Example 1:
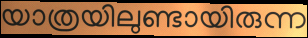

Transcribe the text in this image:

യാത്രയിലുണ്ടായിരുന്ന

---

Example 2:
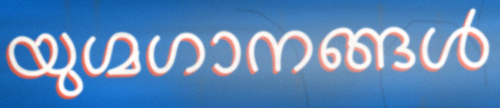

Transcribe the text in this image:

യുഗ്മഗാനങ്ങൾ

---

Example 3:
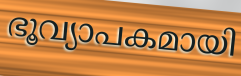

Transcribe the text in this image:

ഭൂവ്യാപകമായി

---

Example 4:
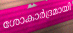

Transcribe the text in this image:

ശോകാർദ്രമായി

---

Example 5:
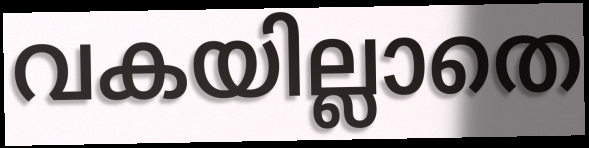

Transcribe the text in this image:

വകയില്ലാതെ